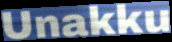
Unakku